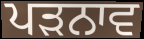
ਪੜਨਾਵ